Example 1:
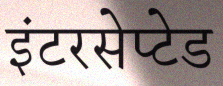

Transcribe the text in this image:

इंटरसेप्टेड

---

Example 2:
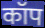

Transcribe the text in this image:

कॉप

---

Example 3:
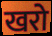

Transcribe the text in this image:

खरो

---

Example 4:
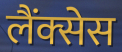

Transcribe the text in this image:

लैंक्‍सेस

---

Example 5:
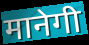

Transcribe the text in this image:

मानेगी